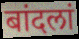
बांदलां